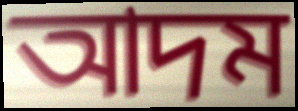
আদম